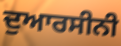
ਦੁਆਰਸੀਨੀ